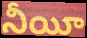
నీయీ